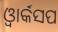
ଓ୍ୱାର୍କସପ